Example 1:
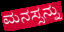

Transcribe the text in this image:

ಮನಸ್ಸನ್ನು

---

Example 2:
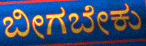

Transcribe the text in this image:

ಬೀಗಬೇಕು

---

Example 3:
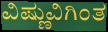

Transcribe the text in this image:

ವಿಷ್ಣುವಿಗಿಂತ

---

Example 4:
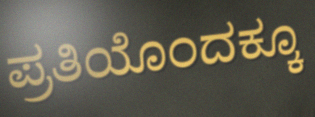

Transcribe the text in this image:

ಪ್ರತಿಯೊಂದಕ್ಕೂ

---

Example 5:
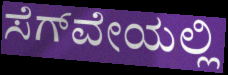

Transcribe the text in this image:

ಸೆಗ್‌ವೇಯಲ್ಲಿ